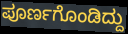
ಪೂರ್ಣಗೊಂಡಿದ್ದು